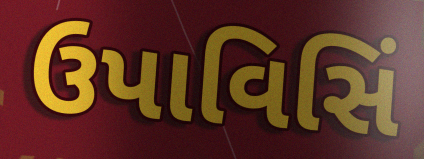
ઉપાવિસિં